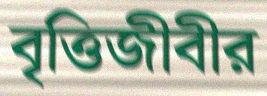
বৃত্তিজীবীর